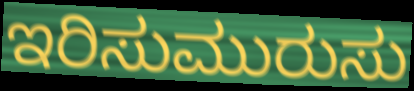
ಇರಿಸುಮುರುಸು